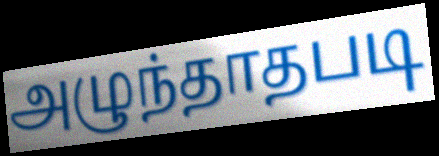
அழுந்தாதபடி